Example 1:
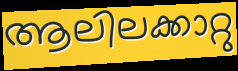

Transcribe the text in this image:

ആലിലക്കാറ്റു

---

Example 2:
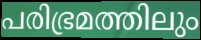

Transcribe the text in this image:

പരിഭ്രമത്തിലും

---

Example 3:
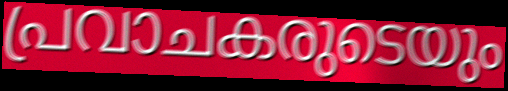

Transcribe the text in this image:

പ്രവാചകരുടെയും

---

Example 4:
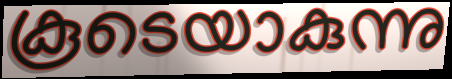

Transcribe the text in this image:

കൂടെയാകുന്നു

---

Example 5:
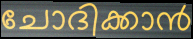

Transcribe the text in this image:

ചോദിക്കാൻ